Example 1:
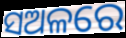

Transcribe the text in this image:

ସଅଳରେ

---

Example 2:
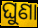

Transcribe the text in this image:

ଘୁଣା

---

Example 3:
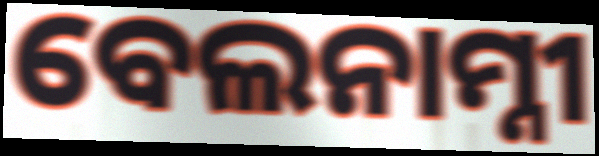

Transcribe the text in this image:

ବେଲନାମ୍ନୀ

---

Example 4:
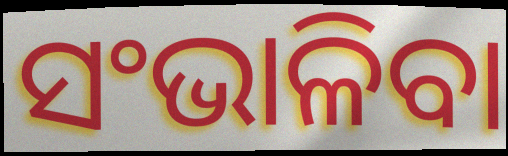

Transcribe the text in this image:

ସଂଭାଳିବା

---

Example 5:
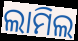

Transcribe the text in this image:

ଲାମିଲ